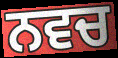
ਨਵਚ